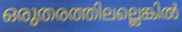
ഒരുതരത്തിലല്ലെങ്കിൽ